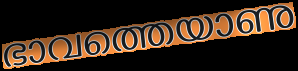
ഭാവത്തെയാണു